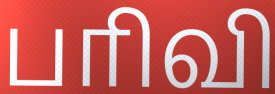
பரிவி